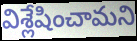
విశ్లేషించామని